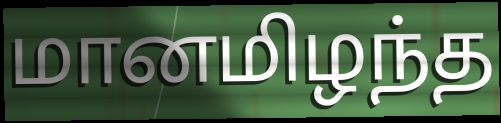
மானமிழந்த